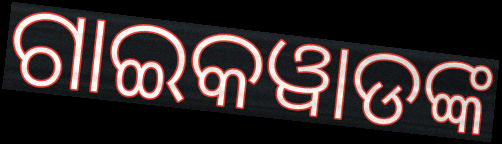
ଗାଇକୱାଡଙ୍କ